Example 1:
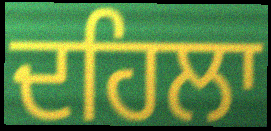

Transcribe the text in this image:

ਦਹਿਲਾ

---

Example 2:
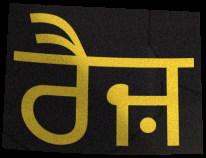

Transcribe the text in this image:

ਰੈਜ਼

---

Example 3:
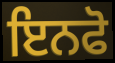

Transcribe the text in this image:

ਇਨਫੋ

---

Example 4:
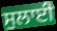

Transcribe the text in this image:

ਸੁਲਾਈ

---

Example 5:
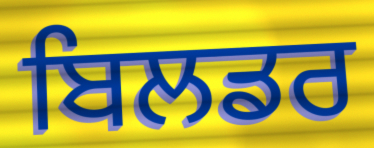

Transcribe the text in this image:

ਬਿਲਡਰ